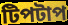
টিপটাপ